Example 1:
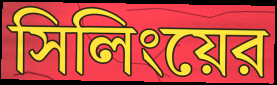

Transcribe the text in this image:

সিলিংয়ের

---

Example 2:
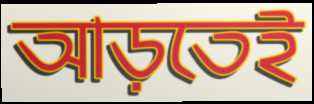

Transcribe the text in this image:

আড়তেই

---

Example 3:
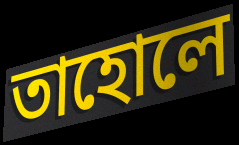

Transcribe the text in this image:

তাহোলে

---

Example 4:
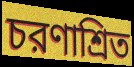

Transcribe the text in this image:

চরণাশ্রিত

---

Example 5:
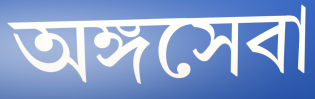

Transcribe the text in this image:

অঙ্গসেবা